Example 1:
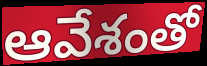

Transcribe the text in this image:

ఆవేశంతో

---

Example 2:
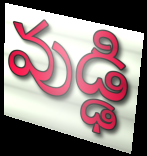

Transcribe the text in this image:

వుడ్ఢి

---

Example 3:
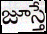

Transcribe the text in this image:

జూస్తే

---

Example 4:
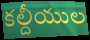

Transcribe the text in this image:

కల్దీయుల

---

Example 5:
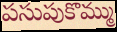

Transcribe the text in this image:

పసుపుకొమ్ము